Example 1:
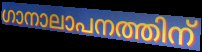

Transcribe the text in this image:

ഗാനാലാപനത്തിന്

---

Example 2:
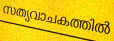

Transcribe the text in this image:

സത്യവാചകത്തിൽ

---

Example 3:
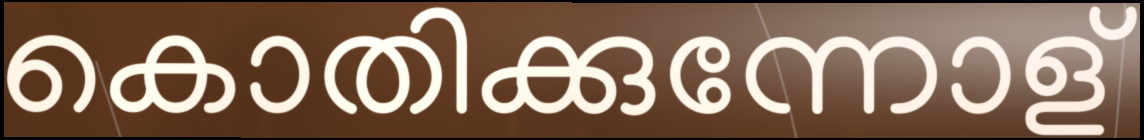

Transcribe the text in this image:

കൊതിക്കുന്നോള്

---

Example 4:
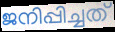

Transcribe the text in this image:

ജനിപ്പിച്ചത്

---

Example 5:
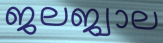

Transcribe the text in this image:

ജലജ്വാല